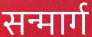
सन्मार्ग